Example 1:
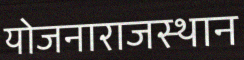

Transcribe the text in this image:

योजनाराजस्थान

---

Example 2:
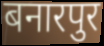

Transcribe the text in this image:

बनारपुर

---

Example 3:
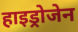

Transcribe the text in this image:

हाइड्रोजेन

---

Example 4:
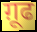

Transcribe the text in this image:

ग़ूढ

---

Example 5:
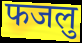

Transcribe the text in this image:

फजलु